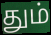
தும்